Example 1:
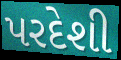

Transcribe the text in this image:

પરદેશી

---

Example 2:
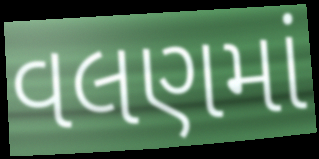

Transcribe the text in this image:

વલણમાં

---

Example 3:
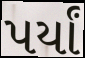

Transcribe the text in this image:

પર્યાં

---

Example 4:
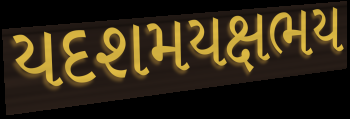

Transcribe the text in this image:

યદશમયક્ષભય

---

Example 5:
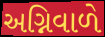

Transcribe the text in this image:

અગ્નિવાળે